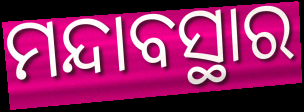
ମନ୍ଦାବସ୍ଥାର